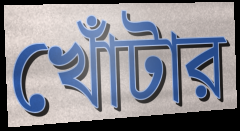
খোঁটার